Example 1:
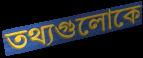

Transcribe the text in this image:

তথ্যগুলোকে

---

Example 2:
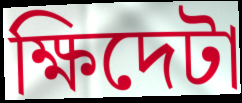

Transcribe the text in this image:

ক্ষিদেটা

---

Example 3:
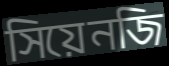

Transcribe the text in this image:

সিয়েনজি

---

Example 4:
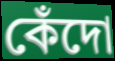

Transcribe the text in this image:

কেঁদো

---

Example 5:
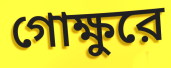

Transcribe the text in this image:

গোক্ষুরে